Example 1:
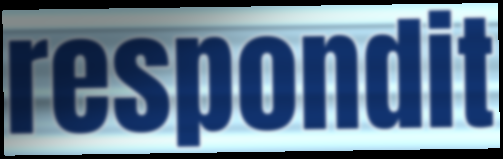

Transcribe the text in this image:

respondit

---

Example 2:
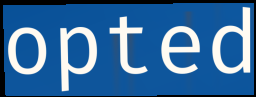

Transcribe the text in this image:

opted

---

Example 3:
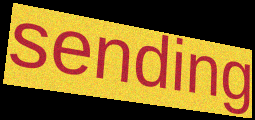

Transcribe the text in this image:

sending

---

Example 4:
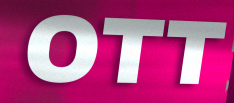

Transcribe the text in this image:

OTT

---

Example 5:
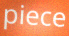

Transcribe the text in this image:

piece